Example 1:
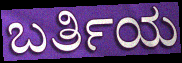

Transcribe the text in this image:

ಬರ್ತಿಯ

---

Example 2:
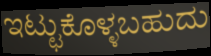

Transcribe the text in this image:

ಇಟ್ಟುಕೊಳ್ಳಬಹುದು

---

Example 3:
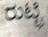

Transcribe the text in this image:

ರುಟ್ಟೆ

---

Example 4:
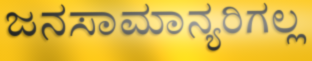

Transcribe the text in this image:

ಜನಸಾಮಾನ್ಯರಿಗಲ್ಲ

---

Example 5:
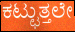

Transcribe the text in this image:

ಕಟ್ಟುತ್ತಲೇ